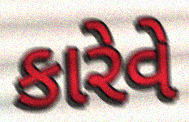
કારેવે